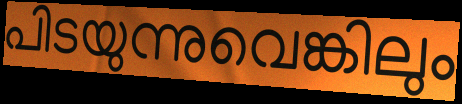
പിടയുന്നുവെങ്കിലും